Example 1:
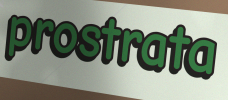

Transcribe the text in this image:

prostrata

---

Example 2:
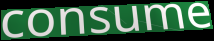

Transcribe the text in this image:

consume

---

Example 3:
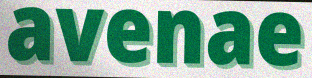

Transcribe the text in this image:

avenae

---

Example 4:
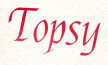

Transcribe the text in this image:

Topsy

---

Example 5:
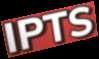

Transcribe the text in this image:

IPTS